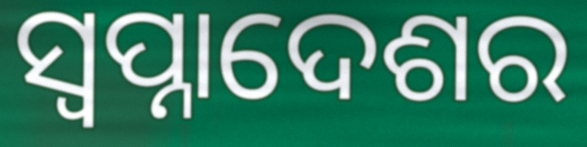
ସ୍ଵପ୍ନାଦେଶର